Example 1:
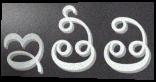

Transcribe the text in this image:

ఇతీతి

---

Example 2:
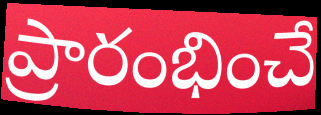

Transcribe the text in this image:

ప్రారంభించే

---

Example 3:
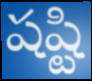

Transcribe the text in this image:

షష్టి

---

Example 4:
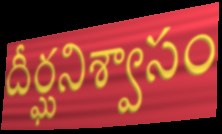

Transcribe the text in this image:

దీర్ఘనిశ్వాసం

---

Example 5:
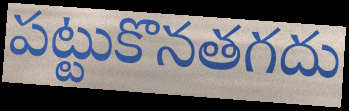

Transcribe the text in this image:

పట్టుకొనతగదు